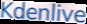
Kdenlive